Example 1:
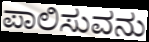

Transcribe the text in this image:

ಪಾಲಿಸುವನು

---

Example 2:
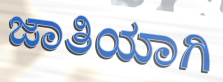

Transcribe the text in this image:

ಜಾತಿಯಾಗಿ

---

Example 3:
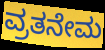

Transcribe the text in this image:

ವ್ರತನೇಮ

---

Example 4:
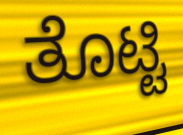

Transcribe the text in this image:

ತೊಟ್ಟಿ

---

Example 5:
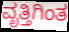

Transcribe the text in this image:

ವೃತ್ತಿಗಿಂತ